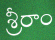
శ్రీరాం